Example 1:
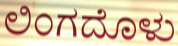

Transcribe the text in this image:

ಲಿಂಗದೊಳು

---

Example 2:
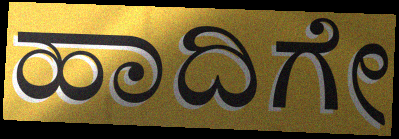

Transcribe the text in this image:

ಹಾದಿಗೇ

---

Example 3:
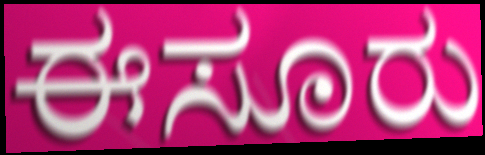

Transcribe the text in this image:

ಈಸೂರು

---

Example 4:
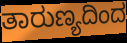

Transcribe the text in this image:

ತಾರುಣ್ಯದಿಂದ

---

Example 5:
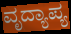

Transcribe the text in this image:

ವೃದ್ಯಾಪ್ಯ